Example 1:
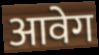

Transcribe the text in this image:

आवेग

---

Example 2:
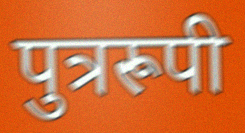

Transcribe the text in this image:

पुत्ररूपी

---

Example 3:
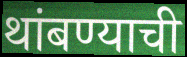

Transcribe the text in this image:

थांबण्याची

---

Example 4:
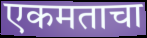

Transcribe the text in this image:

एकमताचा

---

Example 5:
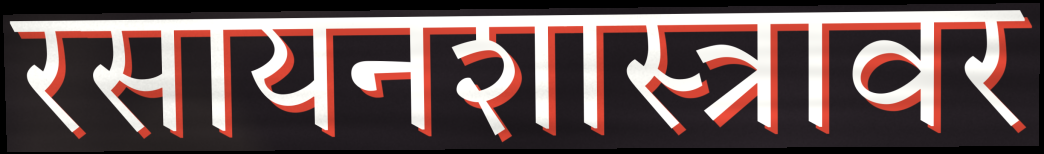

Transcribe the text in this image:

रसायनशास्त्रावर